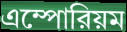
এম্পোরিয়ম